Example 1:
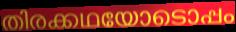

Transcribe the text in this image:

തിരക്കഥയോടൊപ്പം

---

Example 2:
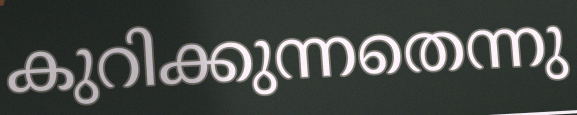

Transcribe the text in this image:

കുറിക്കുന്നതെന്നു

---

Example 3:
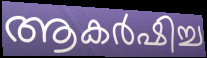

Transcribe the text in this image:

ആകർഷിച്ച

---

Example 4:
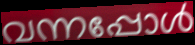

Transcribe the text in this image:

വന്നപ്പോൾ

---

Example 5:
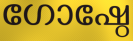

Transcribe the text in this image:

ഗോഷ്ഠേ